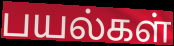
பயல்கள்